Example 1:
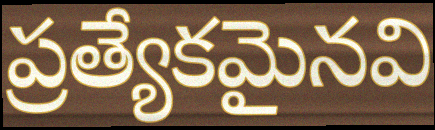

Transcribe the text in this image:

ప్రత్యేకమైనవి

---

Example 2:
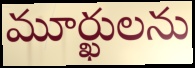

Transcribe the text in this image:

మూర్ఖులను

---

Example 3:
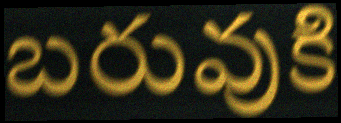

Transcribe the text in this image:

బరువుకి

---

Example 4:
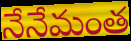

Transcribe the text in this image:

నేనేమంత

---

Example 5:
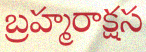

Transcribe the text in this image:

బ్రహ్మరాక్షస